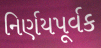
નિર્ણયપૂર્વક